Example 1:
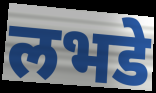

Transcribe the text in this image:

लभडे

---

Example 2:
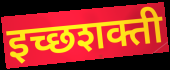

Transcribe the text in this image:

इच्छशक्ती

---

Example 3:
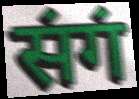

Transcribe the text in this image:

संगं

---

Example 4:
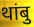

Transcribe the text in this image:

थांबु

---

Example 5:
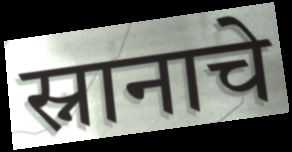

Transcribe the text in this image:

स्नानाचे